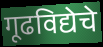
गूढविद्येचे